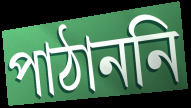
পাঠাননি